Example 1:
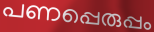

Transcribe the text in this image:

പണപ്പെരുപ്പം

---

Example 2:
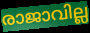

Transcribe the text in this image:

രാജാവില്ല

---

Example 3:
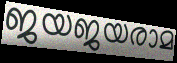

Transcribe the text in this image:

ജയജയരാമ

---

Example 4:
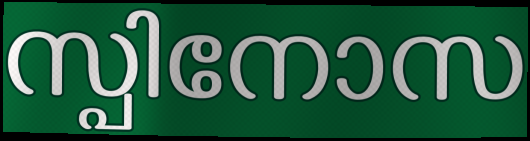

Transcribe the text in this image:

സ്പിനോസ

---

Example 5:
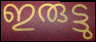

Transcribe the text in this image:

ഇരുട്ടു